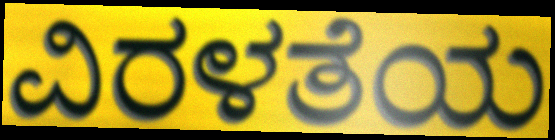
ವಿರಳತೆಯ